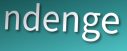
ndenge